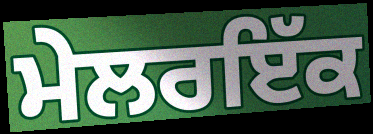
ਮੇਲਰਇੱਕ